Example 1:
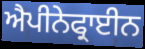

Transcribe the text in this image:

ਐਪੀਨੇਫ੍ਰਾਈਨ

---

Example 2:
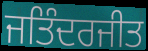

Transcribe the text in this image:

ਜਤਿੰਦਰਜੀਤ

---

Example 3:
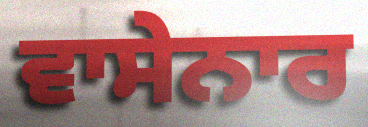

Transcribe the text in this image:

ਵਾਸੇਨਾਰ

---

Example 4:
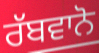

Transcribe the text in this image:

ਰੱਬਵਾਨੋ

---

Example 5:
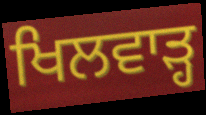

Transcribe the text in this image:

ਖਿਲਵਾੜ੍ਹ